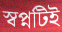
স্বপ্নটিই